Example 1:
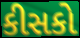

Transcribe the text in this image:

કીસકો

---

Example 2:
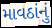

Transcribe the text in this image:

માવઠાંનું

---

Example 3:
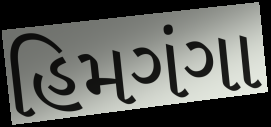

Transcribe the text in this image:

હિમગંગા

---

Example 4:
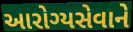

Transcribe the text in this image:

આરોગ્યસેવાને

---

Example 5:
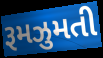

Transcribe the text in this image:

રૂમઝુમતી